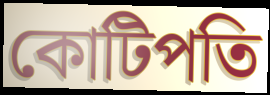
কোটিপতি